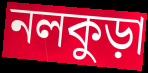
নলকুড়া